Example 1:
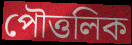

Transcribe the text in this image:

পৌত্তলিক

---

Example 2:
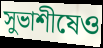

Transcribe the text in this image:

সুভাশীষেও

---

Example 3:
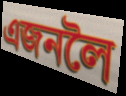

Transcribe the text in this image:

এজনলৈ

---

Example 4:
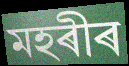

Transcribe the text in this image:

মহৰীৰ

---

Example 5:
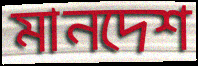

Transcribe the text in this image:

মানদেশ